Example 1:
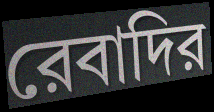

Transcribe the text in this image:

রেবাদির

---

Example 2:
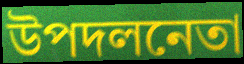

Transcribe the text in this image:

উপদলনেতা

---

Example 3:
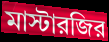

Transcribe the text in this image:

মাস্টারজির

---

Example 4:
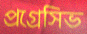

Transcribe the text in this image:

প্রগ্রেসিভ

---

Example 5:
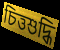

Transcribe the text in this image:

চিত্তশুদ্ধি